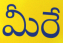
మీరే